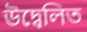
উদ্বেলিত